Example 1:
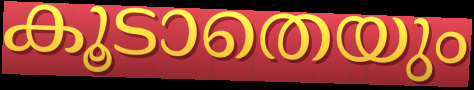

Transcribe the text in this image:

കൂടാതെയും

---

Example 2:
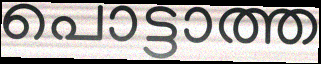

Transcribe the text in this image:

പൊട്ടാത്ത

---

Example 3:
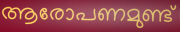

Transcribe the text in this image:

ആരോപണമുണ്ട്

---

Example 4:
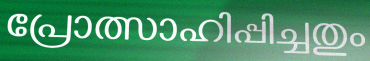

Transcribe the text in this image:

പ്രോത്സാഹിപ്പിച്ചതും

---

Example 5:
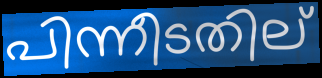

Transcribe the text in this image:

പിന്നീടതില്